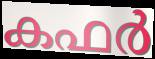
കഫർ